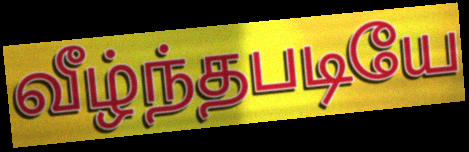
வீழ்ந்தபடியே